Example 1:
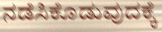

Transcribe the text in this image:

ನಡೆಸಿಕೊಡುವುದಕ್ಕೆ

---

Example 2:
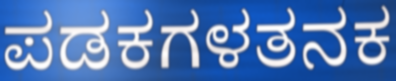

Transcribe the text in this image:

ಪಡಕಗಳತನಕ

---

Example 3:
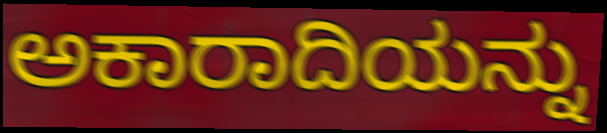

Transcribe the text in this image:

ಅಕಾರಾದಿಯನ್ನು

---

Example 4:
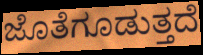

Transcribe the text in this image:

ಜೊತೆಗೂಡುತ್ತದೆ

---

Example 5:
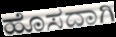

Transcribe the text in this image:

ಹೊಸದಾಗಿ